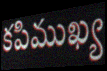
కపిముఖ్య